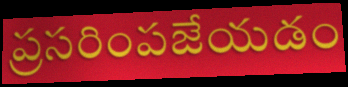
ప్రసరింపజేయడం